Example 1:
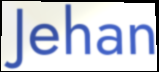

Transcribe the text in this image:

Jehan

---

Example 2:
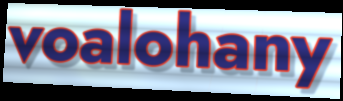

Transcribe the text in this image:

voalohany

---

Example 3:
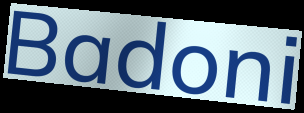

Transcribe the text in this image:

Badoni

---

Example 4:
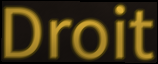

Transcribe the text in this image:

Droit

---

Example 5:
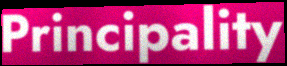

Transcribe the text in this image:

Principality